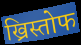
ख्रिस्तोफ